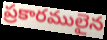
ప్రకారములైన